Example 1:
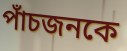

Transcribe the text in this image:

পাঁচজনকে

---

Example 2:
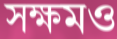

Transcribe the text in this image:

সক্ষমও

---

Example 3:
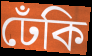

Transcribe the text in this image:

ঢেঁকি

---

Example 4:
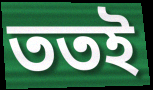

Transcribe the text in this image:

ততই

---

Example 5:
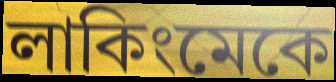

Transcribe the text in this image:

লাকিংমেকে